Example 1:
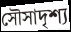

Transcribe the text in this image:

সৌসাদৃশ্য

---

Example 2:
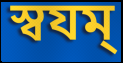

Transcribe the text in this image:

স্বযম্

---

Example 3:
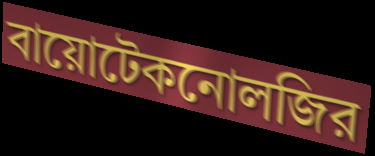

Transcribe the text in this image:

বায়োটেকনোলজির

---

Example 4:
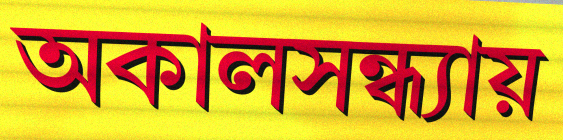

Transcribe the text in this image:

অকালসন্ধ্যায়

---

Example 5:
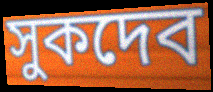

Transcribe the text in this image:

সুকদেব